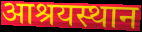
आश्रयस्थान